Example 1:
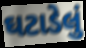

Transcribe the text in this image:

ઘટાડેલું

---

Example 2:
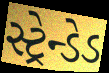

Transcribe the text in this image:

સ્ટ્રેન્ડેડ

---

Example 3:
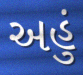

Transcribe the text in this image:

અહું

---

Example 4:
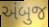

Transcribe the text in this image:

અંબુજ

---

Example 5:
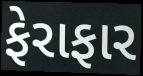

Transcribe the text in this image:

ફેરાફાર